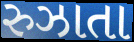
રુઝાતા